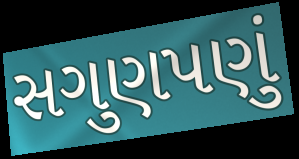
સગુણપણું